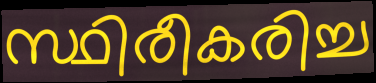
സ്ഥിരീകരിച്ച